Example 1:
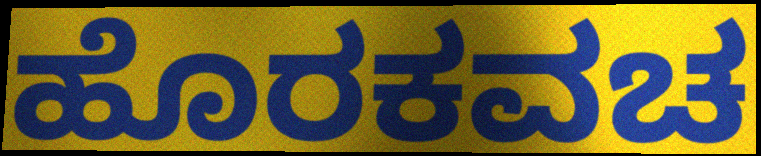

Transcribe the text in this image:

ಹೊರಕವಚ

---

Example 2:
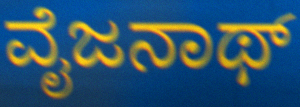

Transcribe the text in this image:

ವೈಜನಾಥ್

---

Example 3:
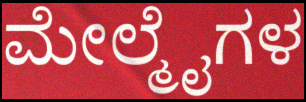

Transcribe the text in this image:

ಮೇಲ್ಮೈಗಳ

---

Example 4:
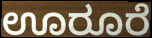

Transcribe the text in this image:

ಊರೂರೆ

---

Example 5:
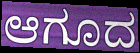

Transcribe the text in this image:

ಆಗೂದ